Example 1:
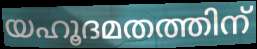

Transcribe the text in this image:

യഹൂദമതത്തിന്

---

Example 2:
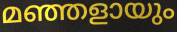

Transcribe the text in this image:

മഞ്ഞളായും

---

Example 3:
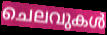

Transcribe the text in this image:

ചെലവുകൾ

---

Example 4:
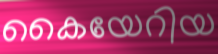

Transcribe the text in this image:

കൈയേറിയ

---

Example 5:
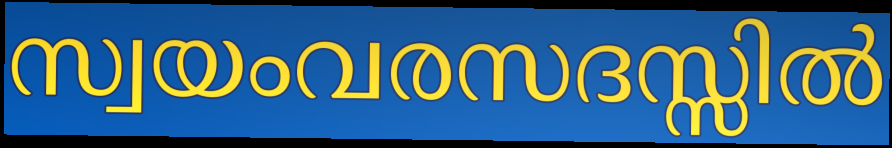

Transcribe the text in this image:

സ്വയംവരസദസ്സിൽ